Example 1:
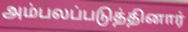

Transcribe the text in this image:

அம்பலப்படுத்தினார்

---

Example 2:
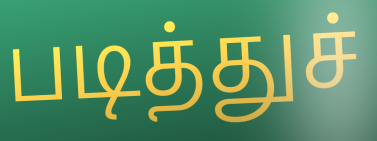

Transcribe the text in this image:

படித்துச்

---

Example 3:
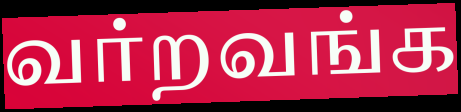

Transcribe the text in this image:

வர்றவங்க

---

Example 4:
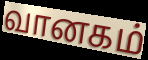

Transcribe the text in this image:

வானகம்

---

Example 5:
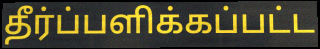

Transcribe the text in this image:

தீர்ப்பளிக்கப்பட்ட